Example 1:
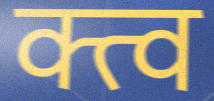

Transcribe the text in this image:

क्त्व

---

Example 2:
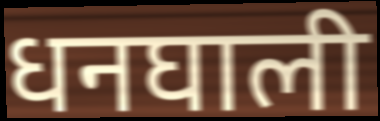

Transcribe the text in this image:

धनघाली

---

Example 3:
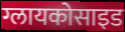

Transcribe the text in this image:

ग्लायकोसाइड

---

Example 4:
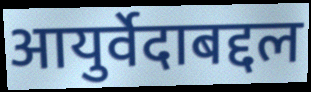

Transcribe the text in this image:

आयुर्वेदाबद्दल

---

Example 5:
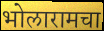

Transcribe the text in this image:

भोलारामचा